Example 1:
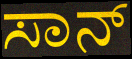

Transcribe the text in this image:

ಸಾನ್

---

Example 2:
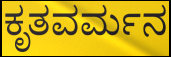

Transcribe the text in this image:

ಕೃತವರ್ಮನ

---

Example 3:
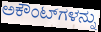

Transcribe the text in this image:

ಅಕೌಂಟ್‌ಗಳನ್ನು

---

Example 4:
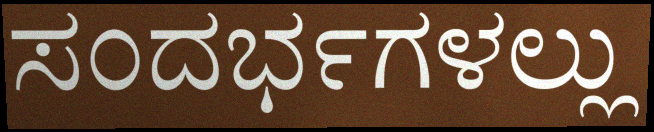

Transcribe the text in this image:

ಸಂದರ್ಭಗಳಲ್ಲು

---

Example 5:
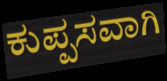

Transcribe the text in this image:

ಕುಪ್ಪಸವಾಗಿ